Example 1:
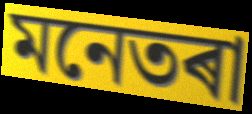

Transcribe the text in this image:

মনেতৰা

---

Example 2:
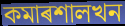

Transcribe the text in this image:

কমাৰশালখন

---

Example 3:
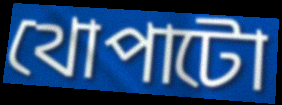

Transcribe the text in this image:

থোপাটো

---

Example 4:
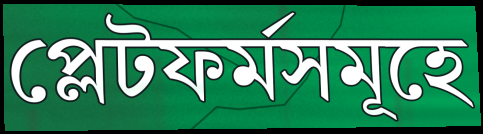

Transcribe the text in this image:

প্লেটফৰ্মসমূহে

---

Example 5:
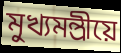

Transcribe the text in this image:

মুখ্যমন্ত্ৰীয়ে